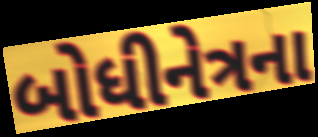
બોધીનેત્રના